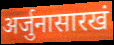
अर्जुनासारखं